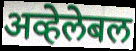
अव्हेलेबल